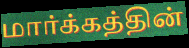
மார்க்கத்தின்